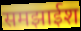
समझाईश